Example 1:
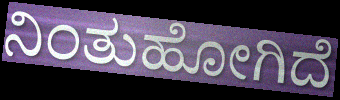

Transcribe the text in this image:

ನಿಂತುಹೋಗಿದೆ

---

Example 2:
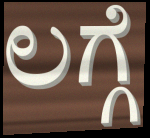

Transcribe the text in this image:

ಲಗ್ಗೆ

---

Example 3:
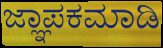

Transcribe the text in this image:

ಜ್ಞಾಪಕಮಾಡಿ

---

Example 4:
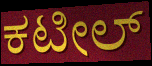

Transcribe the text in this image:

ಕಟೀಲ್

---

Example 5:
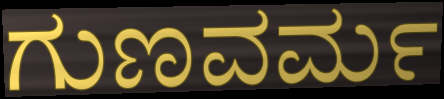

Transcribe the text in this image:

ಗುಣವರ್ಮ